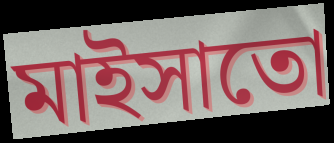
মাইসাতো